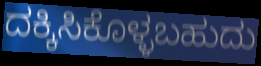
ದಕ್ಕಿಸಿಕೊಳ್ಳಬಹುದು